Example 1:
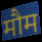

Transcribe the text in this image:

मौम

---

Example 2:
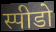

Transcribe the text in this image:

स्पीडो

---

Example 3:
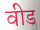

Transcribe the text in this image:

वीड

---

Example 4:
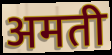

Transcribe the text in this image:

अमती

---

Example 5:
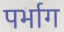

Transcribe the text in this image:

पर्भाग